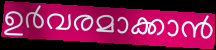
ഉർവരമാക്കാൻ